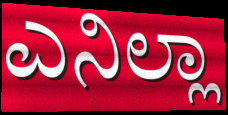
ಎನಿಲ್ಲಾ